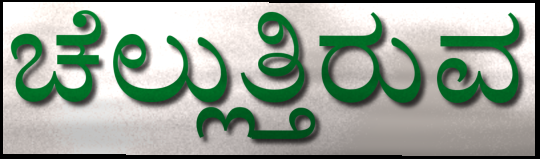
ಚೆಲ್ಲುತ್ತಿರುವ